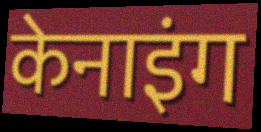
केनाइंग